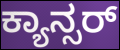
ಕ್ಯಾನ್ಸರ್